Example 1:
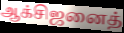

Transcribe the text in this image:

ஆக்சிஜனைத்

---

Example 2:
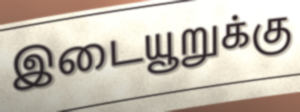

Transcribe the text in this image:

இடையூறுக்கு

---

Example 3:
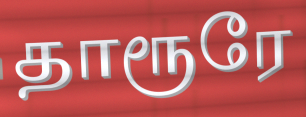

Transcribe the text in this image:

தாரூரே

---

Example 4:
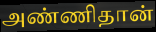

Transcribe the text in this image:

அண்ணிதான்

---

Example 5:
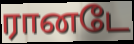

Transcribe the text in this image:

ரானடே